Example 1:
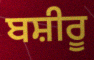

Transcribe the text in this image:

ਬਸ਼ੀਰੂ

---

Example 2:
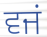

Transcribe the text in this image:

ਵਜਂ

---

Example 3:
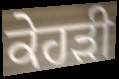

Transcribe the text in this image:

ਕੇਹੜੀ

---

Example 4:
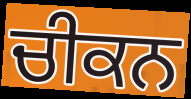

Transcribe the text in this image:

ਚੀਕਨ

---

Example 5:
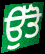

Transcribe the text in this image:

ਉੱਤੋ